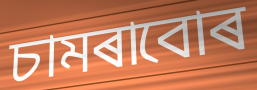
চামৰাবোৰ